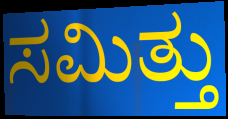
ಸಮಿತ್ತು